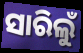
ସାରିଲୁଁ